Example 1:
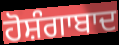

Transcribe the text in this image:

ਹੋਸ਼ੰਗਾਬਾਦ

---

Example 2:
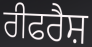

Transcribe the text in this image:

ਰੀਫਰੈਸ਼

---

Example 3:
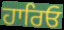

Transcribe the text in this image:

ਹਾਰਿਓ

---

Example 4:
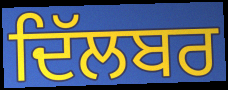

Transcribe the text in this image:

ਦਿੱਲਬਰ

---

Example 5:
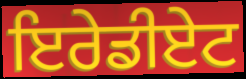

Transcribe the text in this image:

ਇਰੇਡੀਏਟ